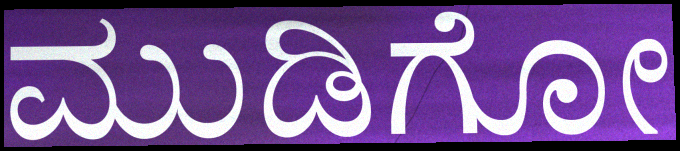
ಮುಡಿಗೋ